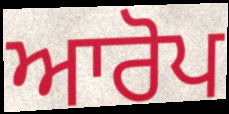
ਆਰੋਪ